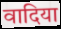
वादिया